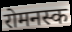
रोमनस्क